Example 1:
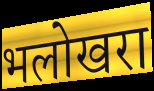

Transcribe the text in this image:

भलोखरा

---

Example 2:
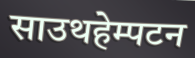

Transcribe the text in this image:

साउथहेम्पटन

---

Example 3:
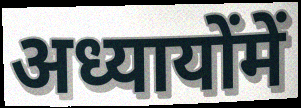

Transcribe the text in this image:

अध्यायोंमें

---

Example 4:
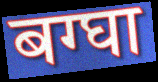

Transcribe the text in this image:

बग्घा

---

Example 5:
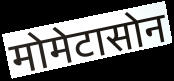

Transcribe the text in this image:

मोमेटासोन